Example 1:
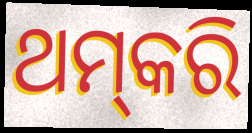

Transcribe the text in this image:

ଥମ୍‌କରି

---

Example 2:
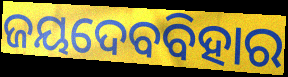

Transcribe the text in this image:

ଜୟଦେବବିହାର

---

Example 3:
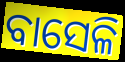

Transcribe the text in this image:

ବାସେଳି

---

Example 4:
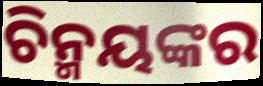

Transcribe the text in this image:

ଚିନ୍ମୟଙ୍କର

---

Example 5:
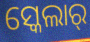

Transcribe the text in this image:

ସ୍କେଲାର୍